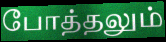
போத்தலும்